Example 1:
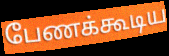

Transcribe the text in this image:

பேணக்கூடிய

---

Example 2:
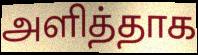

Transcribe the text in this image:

அளித்தாக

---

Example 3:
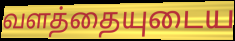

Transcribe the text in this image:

வளத்தையுடைய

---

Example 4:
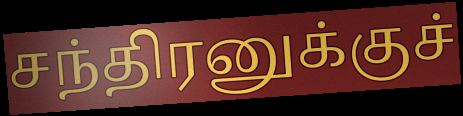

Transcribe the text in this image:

சந்திரனுக்குச்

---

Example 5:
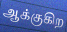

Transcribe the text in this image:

ஆக்குகிற